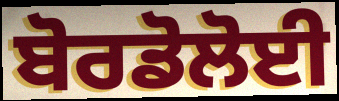
ਬੋਰਡੋਲੋਈ